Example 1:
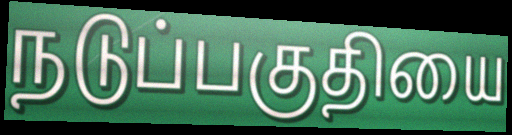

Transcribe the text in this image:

நடுப்பகுதியை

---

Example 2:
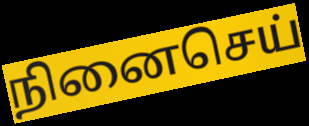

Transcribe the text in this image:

நினைசெய்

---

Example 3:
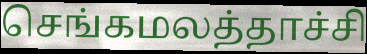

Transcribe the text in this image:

செங்கமலத்தாச்சி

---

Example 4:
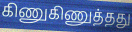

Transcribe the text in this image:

கிணுகிணுத்தது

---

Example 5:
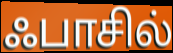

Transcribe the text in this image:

ஃபாசில்